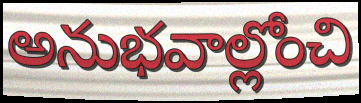
అనుభవాల్లోంచి